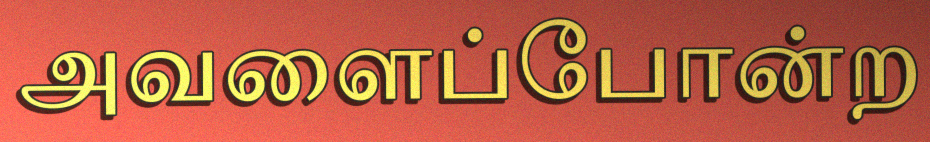
அவளைப்போன்ற